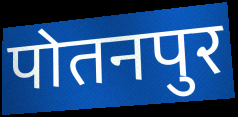
पोतनपुर